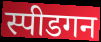
स्पीडगन